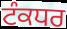
ਟੰਕਧਰ